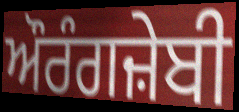
ਔਰੰਗਜ਼ੇਬੀ